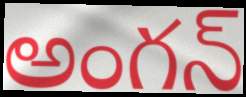
అంగన్